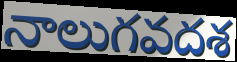
నాలుగవదశ